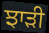
ਝਾੜੀ